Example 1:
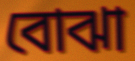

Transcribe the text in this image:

বোঝা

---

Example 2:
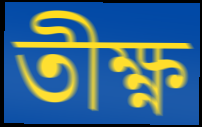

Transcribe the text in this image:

তীক্ষ্ণ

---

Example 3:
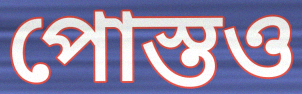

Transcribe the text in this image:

পোস্তও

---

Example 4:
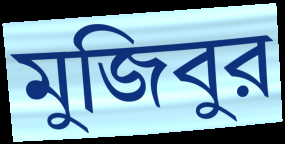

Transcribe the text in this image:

মুজিবুর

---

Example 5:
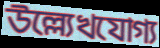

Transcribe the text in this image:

উল্ল্যেখযোগ্য